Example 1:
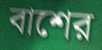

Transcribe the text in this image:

বাশের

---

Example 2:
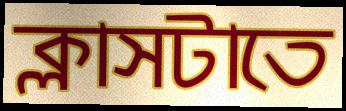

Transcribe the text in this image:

ক্লাসটাতে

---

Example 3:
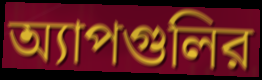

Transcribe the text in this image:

অ্যাপগুলির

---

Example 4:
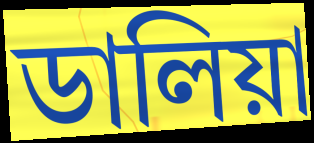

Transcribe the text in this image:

ডালিয়া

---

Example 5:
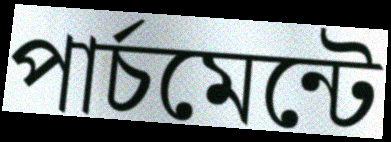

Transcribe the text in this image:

পার্চমেন্টে